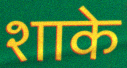
शाके